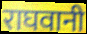
राघवानी